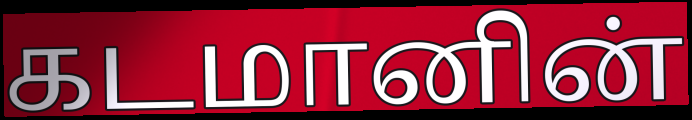
கடமானின்